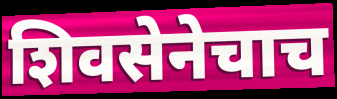
शिवसेनेचाच